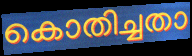
കൊതിച്ചതാ